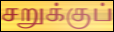
சறுக்குப்